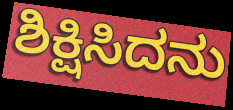
ಶಿಕ್ಷಿಸಿದನು